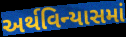
અર્થવિન્યાસમાં